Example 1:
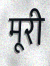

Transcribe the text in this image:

मूरी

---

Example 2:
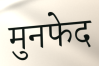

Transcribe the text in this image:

मुनफेद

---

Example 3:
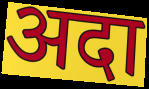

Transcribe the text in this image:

अदा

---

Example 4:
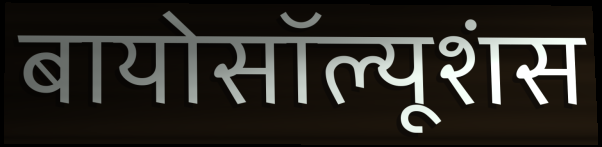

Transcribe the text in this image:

बायोसॉल्यूशंस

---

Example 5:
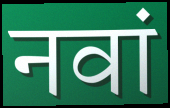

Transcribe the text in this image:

नवां